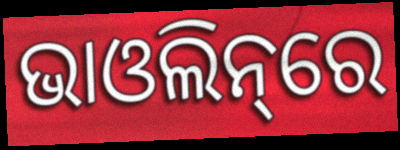
ଭାଓଲିନ୍‌ରେ